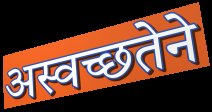
अस्वच्छतेने